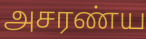
அசரண்ய